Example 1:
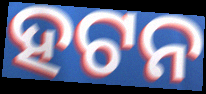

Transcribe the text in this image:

ହଟନ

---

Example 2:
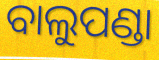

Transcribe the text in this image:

ବାଲୁପଣ୍ଡା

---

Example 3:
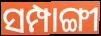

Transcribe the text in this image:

ସମ୍ପାଙ୍ଗୀ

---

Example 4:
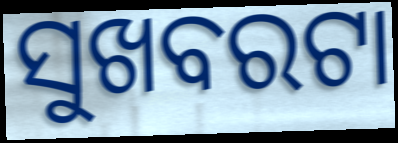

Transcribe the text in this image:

ସୁଖବରଟା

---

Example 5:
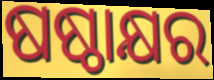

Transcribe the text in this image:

ଷଷ୍ଠାକ୍ଷର